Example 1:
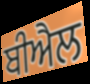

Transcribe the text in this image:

ਬੀਐਲ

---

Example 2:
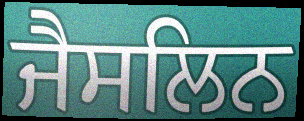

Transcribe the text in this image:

ਜੈਸਲਿਨ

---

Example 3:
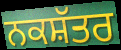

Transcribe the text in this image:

ਨਕਸ਼ੱਤਰ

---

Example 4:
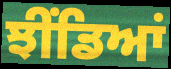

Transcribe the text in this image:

ਝੀਂਡਿਆਂ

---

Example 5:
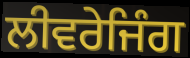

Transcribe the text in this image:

ਲੀਵਰੇਜਿੰਗ